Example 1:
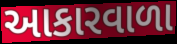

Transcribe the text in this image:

આકારવાળા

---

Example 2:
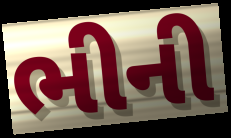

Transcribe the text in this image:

ભીની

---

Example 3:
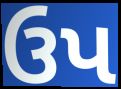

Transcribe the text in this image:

ઉપ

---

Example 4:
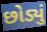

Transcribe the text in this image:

છોડ્યું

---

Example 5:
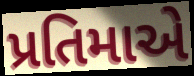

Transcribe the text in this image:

પ્રતિમાએ